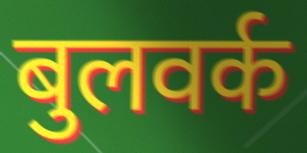
बुलवर्क